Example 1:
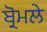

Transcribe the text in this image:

ਬ੍ਰੋਮਲੇ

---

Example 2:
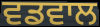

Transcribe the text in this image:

ਵਡਵਾਲ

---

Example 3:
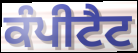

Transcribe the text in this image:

ਕੰਪੀਟੈਟ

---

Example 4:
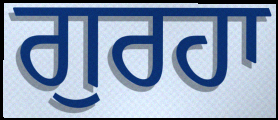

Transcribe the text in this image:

ਗੁਰਹਾ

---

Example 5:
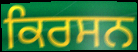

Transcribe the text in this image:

ਕਿਰਸਨ